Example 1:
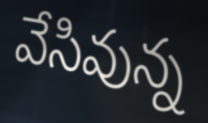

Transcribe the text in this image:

వేసివున్న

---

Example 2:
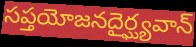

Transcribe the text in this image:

సప్తయోజనదైర్ఘ్యవాన్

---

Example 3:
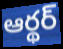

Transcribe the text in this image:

ఆర్థర్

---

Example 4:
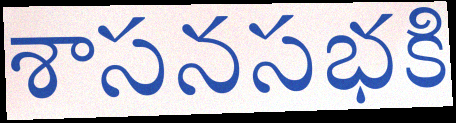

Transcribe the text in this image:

శాసనసభకి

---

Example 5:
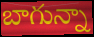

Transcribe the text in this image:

బాగున్నా